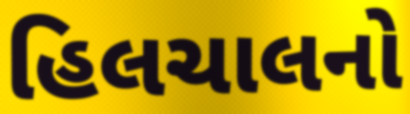
હિલચાલનો